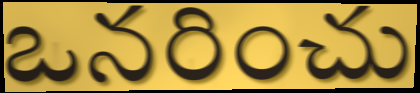
ఒనరించు